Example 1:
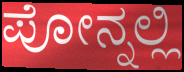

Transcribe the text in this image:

ಪೋನ್ನಲ್ಲಿ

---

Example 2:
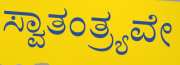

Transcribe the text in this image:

ಸ್ವಾತಂತ್ರ್ಯವೇ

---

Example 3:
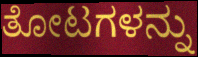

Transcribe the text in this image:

ತೋಟಗಳನ್ನು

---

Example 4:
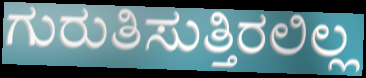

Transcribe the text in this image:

ಗುರುತಿಸುತ್ತಿರಲಿಲ್ಲ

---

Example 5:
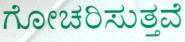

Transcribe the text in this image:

ಗೋಚರಿಸುತ್ತವೆ